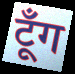
टूँग